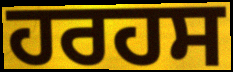
ਹਰਹਸ